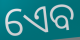
ଏେବ